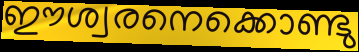
ഈശ്വരനെക്കൊണ്ടു